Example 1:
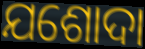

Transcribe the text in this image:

ଯଶୋଦା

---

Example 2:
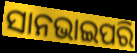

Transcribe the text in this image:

ସାନଭାଇପରି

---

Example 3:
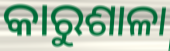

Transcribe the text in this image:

କାରୁଶାଳା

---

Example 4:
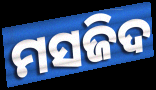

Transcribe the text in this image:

ମସଜିଦ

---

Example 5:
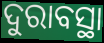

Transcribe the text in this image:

ଦୁରାବସ୍ଥା